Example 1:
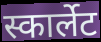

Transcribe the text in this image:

स्कार्लेट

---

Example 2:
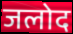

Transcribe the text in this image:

जलोद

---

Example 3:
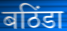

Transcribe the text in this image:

बठिंडा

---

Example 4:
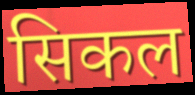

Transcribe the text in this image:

सिकल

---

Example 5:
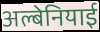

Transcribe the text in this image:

अल्बेनियाई